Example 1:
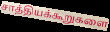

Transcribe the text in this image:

சாத்தியக்கூறுகளை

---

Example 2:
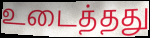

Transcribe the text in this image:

உடைத்தது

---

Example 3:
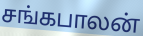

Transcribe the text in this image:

சங்கபாலன்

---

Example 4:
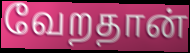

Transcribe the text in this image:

வேறதான்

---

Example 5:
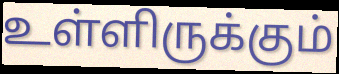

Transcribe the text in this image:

உள்ளிருக்கும்